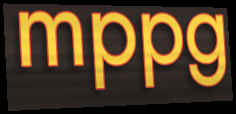
mppg